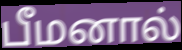
பீமனால்